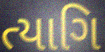
ત્યાગિ